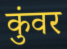
कुंवर